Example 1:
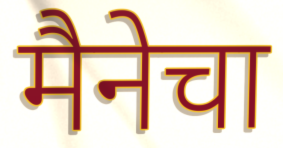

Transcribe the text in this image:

मैनेचा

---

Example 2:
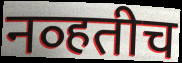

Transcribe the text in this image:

नव्हतीच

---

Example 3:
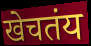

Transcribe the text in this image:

खेचतंय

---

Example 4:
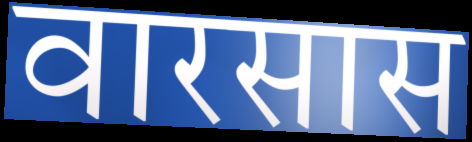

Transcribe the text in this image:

वारसास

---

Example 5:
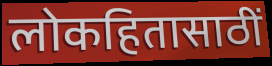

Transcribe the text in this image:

लोकहितासाठीं